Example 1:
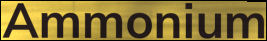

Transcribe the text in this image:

Ammonium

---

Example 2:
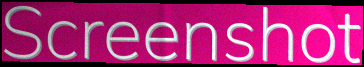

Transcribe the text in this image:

Screenshot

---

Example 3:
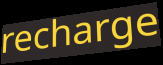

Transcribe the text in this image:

recharge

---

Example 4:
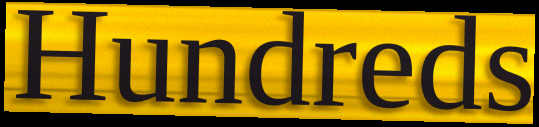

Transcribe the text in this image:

Hundreds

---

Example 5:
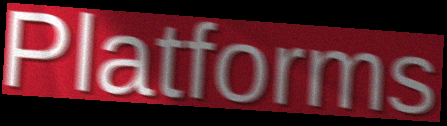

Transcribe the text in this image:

Platforms